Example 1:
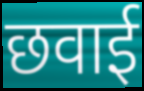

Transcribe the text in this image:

छवाई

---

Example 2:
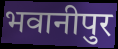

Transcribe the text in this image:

भवानीपुर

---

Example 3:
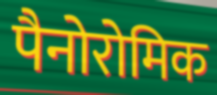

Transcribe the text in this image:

पैनोरोमिक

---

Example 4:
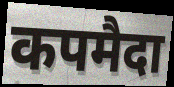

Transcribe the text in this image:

कपमैदा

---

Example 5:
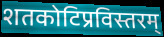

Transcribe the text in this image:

शतकोटिप्रविस्तरम्